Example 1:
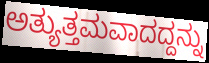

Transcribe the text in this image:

ಅತ್ಯುತ್ತಮವಾದದ್ದನ್ನು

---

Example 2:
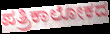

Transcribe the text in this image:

ಪತ್ರಿಕಾಲೋಕದ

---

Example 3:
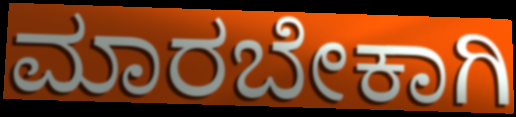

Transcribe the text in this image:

ಮಾರಬೇಕಾಗಿ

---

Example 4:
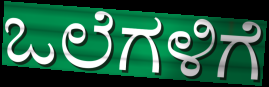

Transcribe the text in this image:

ಒಲೆಗಳಿಗೆ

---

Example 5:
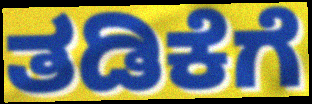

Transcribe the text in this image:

ತಡಿಕೆಗೆ